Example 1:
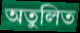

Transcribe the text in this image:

অতুলিত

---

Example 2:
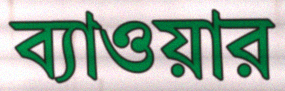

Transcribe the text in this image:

ব্যাওয়ার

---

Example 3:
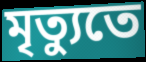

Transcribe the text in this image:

মৃত্যুতে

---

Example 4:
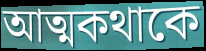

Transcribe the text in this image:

আত্মকথাকে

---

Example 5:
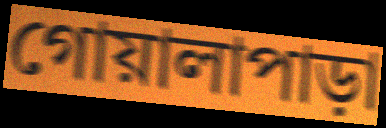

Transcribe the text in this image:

গোয়ালাপাড়া